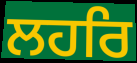
ਲਹਰਿ